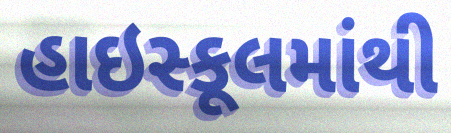
હાઇસ્કૂલમાંથી